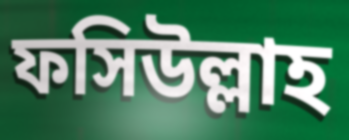
ফসিউল্লাহ